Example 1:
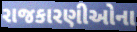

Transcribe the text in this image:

રાજકારણીઓના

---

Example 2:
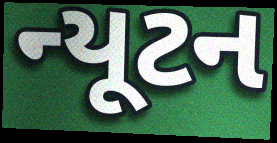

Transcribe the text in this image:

ન્યૂટન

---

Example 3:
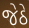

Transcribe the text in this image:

જેઠે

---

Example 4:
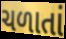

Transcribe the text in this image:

ચળાતાં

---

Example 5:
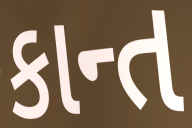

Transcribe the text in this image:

કાન્ત